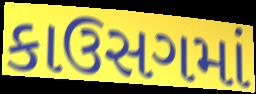
કાઉસગમાં